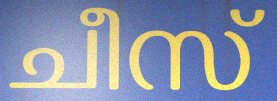
ചീസ്